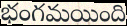
భంగమయింది